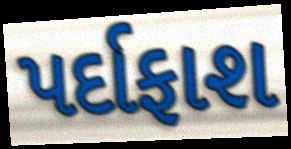
પર્દાફાશ